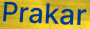
Prakar